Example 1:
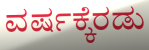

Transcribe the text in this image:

ವರ್ಷಕ್ಕೆರಡು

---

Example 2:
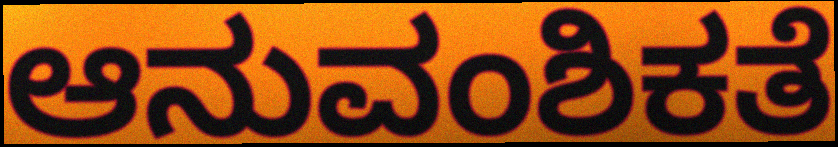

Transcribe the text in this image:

ಆನುವಂಶಿಕತೆ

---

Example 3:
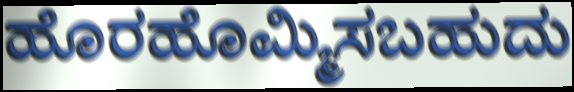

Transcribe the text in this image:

ಹೊರಹೊಮ್ಮಿಸಬಹುದು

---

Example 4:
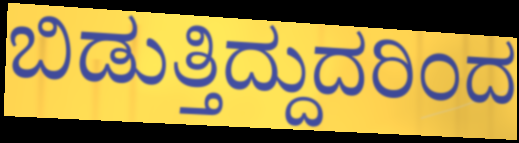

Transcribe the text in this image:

ಬಿಡುತ್ತಿದ್ದುದರಿಂದ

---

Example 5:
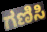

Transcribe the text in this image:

ಗಣಿಸಿ